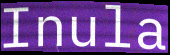
Inula